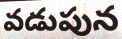
వడుపున